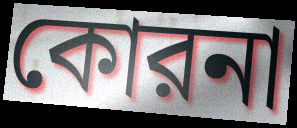
কোরনা